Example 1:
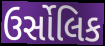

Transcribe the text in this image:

ઉર્સોલિક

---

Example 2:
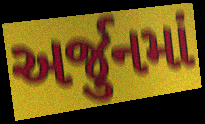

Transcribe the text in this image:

અર્જુનમાં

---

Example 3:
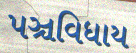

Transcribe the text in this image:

પઞ્ચવિધાય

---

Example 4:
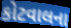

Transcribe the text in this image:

કોટવાલના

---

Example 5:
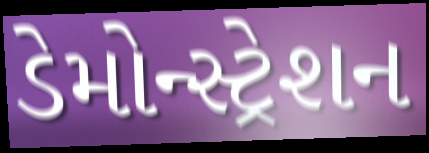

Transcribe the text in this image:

ડેમોન્સ્ટ્રેશન